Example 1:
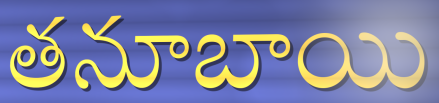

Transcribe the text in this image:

తనూబాయి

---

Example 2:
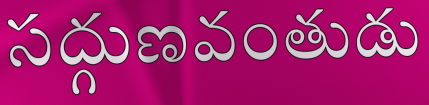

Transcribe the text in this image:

సద్గుణవంతుడు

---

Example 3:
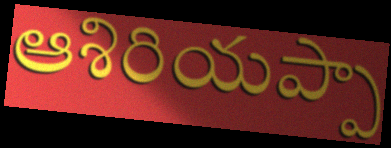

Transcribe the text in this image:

ఆశిరియప్పా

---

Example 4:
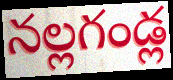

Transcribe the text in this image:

నల్లగండ్ల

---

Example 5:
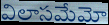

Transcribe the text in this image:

విలాసమేమో